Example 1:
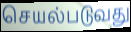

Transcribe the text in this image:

செயல்படுவது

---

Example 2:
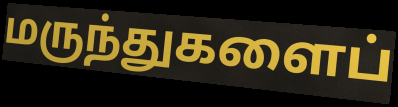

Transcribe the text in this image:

மருந்துகளைப்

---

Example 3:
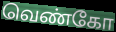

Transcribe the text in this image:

வெண்கோ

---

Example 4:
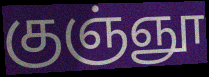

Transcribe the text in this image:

குஞ்ஞூ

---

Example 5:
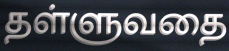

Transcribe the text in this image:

தள்ளுவதை